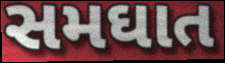
સમઘાત